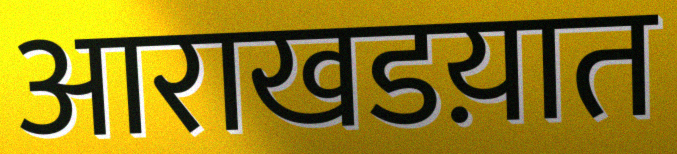
आराखडय़ात